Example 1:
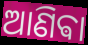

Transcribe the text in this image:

ଆଣିଵା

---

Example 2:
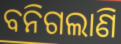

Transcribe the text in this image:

ବନିଗଲାଣି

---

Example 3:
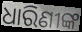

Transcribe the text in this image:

ଧାରିଣୀଙ୍କ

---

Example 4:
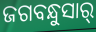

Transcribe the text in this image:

ଜଗବନ୍ଧୁସାର୍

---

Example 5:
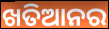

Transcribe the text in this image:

ଖତିଆନର